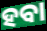
ହବା